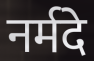
नर्मदे